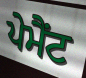
ਪੇਮੈਂਟ